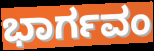
ಭಾರ್ಗವಂ